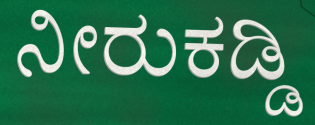
ನೀರುಕಡ್ಡಿ